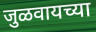
जुळवायच्या